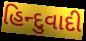
હિન્દુવાદી